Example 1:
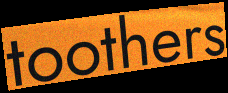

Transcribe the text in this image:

toothers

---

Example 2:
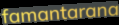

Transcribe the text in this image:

famantarana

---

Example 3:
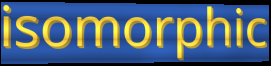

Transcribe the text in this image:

isomorphic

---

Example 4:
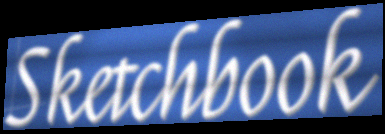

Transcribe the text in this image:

Sketchbook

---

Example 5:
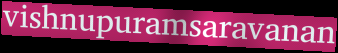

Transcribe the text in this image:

vishnupuramsaravanan